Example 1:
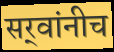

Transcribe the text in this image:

सर्वांनीच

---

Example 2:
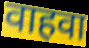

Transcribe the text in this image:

वाहवा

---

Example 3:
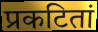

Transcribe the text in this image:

प्रकटितां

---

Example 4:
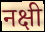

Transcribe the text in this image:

नक्षी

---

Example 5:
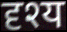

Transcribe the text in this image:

दृश्य